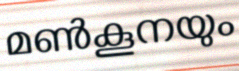
മൺകൂനയും